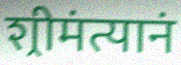
श्रीमंत्यानं